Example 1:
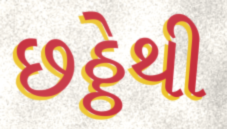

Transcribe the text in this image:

છઠ્ઠેથી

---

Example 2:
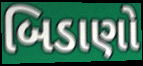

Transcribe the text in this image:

બિડાણો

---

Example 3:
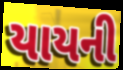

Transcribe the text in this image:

યાયની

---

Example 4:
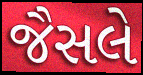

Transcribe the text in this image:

જૈસલે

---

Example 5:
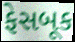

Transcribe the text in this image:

ફેસબૂક